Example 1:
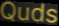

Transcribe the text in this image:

Quds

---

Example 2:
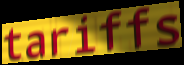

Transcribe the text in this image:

tariffs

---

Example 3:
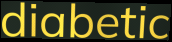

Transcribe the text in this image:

diabetic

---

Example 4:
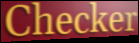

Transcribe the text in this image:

Checker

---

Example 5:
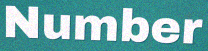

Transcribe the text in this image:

Number